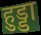
हुड्डा